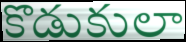
కొడుకులా